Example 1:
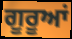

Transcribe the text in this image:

ਗੂਰੂਆਂ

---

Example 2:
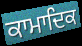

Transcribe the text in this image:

ਕਾਮਾਦਿਕ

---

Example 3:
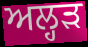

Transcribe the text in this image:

ਅਲ੍ਹੜ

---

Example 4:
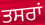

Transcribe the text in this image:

ਤਸਰਾਂ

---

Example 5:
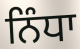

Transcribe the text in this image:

ਨਿੰਧਾ